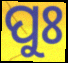
ପୁଃ